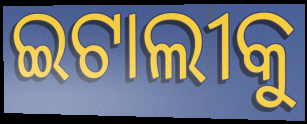
ଇଟାଲୀକୁ